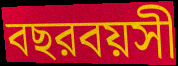
বছরবয়সী